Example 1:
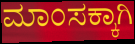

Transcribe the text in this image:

ಮಾಂಸಕ್ಕಾಗಿ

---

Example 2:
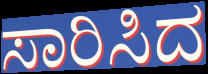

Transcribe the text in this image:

ಸಾರಿಸಿದ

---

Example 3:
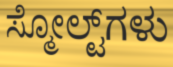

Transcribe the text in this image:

ಸ್ಮೋಲ್ಟ್‌ಗಳು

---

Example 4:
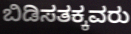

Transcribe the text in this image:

ಬಿಡಿಸತಕ್ಕವರು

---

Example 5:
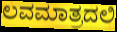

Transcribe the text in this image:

ಲವಮಾತ್ರದಲಿ